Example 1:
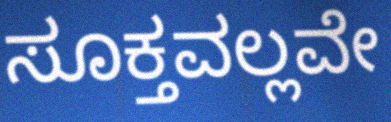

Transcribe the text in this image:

ಸೂಕ್ತವಲ್ಲವೇ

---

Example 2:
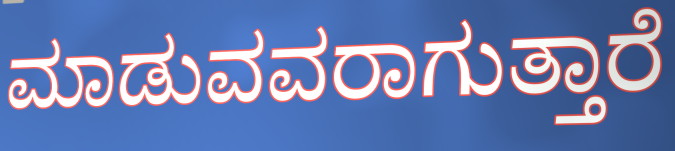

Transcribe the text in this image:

ಮಾಡುವವರಾಗುತ್ತಾರೆ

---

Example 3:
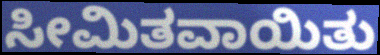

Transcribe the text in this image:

ಸೀಮಿತವಾಯಿತು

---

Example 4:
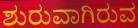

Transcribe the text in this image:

ಶುರುವಾಗಿರುವ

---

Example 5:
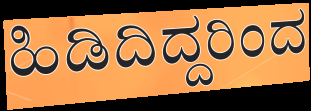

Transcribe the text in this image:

ಹಿಡಿದಿದ್ದರಿಂದ